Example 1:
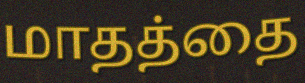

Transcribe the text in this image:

மாதத்தை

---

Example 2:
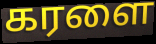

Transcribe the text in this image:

கரளை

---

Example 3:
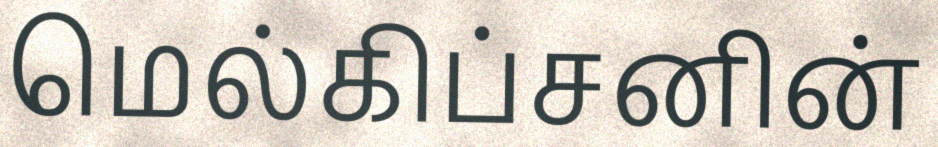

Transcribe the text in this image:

மெல்கிப்சனின்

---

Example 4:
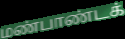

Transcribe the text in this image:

மண்பாண்டக்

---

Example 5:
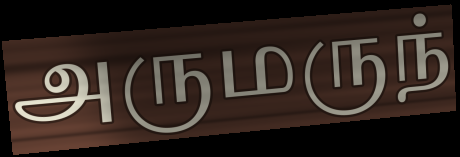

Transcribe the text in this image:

அருமருந்